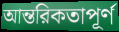
আন্তরিকতাপূর্ণ